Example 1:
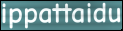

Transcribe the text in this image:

ippattaidu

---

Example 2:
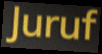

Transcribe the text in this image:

Juruf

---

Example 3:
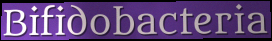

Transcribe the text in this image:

Bifidobacteria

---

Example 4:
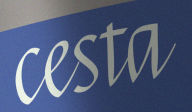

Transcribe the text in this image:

cesta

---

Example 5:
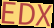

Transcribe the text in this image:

EDX